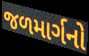
જળમાર્ગનો